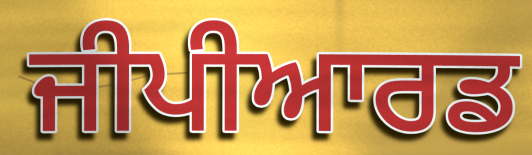
ਜੀਪੀਆਰਡ